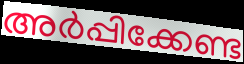
അർപ്പിക്കേണ്ട